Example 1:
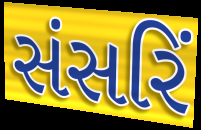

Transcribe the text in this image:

સંસરિં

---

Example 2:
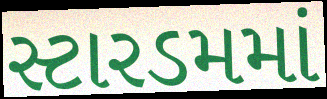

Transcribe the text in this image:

સ્ટારડમમાં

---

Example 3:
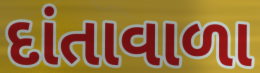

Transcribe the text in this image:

દાંતાવાળા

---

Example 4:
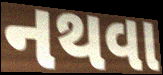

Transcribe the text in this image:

નથવા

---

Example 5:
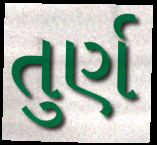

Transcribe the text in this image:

તુર્ણ